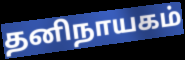
தனிநாயகம்